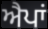
ਐਪਾਂ